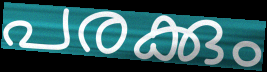
പരക്കും